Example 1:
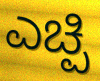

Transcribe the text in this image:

ಎಚ್ಪಿ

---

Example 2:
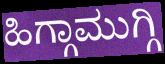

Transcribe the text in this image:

ಹಿಗ್ಗಾಮುಗ್ಗಿ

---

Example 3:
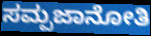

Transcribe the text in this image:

ಸಮ್ಪಜಾನೋತಿ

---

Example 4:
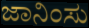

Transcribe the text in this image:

ಜಾನಿಂಸು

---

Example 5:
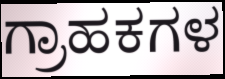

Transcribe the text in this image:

ಗ್ರಾಹಕಗಳ